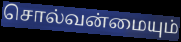
சொல்வன்மையும்